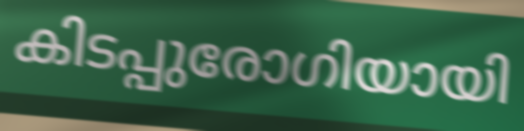
കിടപ്പുരോഗിയായി